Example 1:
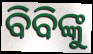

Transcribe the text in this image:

ବିବିଙ୍କୁ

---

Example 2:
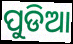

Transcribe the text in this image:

ପୁଡିଆ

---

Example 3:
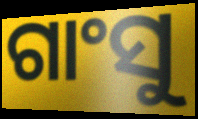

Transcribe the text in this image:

ଗାଂସୁ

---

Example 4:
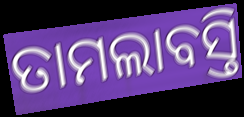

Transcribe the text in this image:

ତାମଲାବସ୍ତି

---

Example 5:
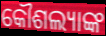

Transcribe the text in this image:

କୌଶଲ୍ୟାଙ୍କ